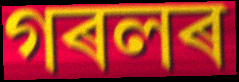
গৰলৰ